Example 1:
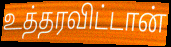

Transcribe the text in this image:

உத்தரவிட்டான்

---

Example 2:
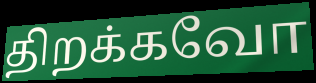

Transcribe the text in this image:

திறக்கவோ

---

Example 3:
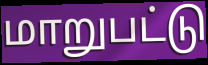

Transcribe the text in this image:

மாறுபட்டு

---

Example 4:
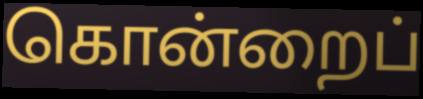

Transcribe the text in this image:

கொன்றைப்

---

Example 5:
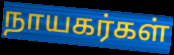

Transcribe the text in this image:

நாயகர்கள்